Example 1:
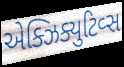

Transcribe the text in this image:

એક્ઝિક્યુટિવ્સ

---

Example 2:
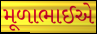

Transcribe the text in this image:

મૂળાભાઈએ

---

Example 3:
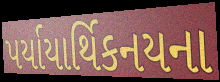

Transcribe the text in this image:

પર્યાયાર્થિકનયના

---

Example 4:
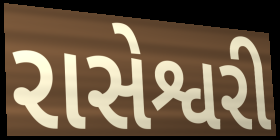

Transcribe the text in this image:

રાસેશ્વરી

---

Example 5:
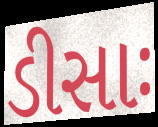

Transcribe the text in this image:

ડીસાઃ